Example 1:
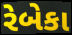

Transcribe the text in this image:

રેબેકા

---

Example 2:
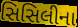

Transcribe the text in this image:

સિસિલીના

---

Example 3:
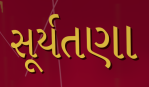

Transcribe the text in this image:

સૂર્યતણા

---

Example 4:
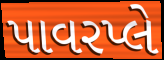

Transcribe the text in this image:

પાવરપ્લે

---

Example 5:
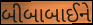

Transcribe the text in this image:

બીબાબાઈને